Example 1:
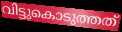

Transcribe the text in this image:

വിട്ടുകൊടുത്തത്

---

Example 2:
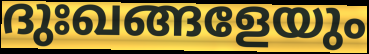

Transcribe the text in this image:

ദുഃഖങ്ങളേയും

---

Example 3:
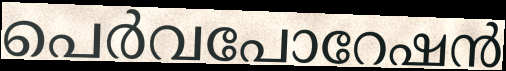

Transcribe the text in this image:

പെർവപോറേഷൻ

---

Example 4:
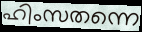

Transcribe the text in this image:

ഹിംസതന്നെ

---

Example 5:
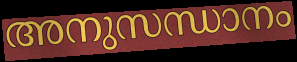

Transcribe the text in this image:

അനുസന്ധാനം